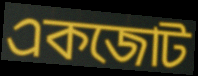
একজোট